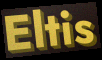
Eltis